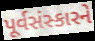
પૂર્વસંસ્કારને